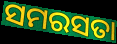
ସମରସତା